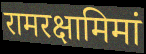
रामरक्षामिमां